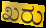
ಖರು